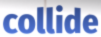
collide